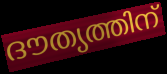
ദൗത്യത്തിന്